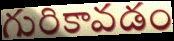
గురికావడం